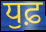
ਧੁਫ਼